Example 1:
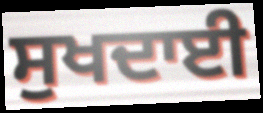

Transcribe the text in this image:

ਸੁਖਦਾਈ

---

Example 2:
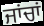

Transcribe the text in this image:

ਜਾਂਚਾਂ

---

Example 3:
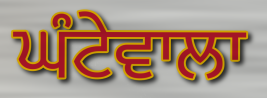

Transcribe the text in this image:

ਘੰਟੇਵਾਲਾ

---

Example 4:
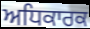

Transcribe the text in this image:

ਅਧਿਕਾਰਕ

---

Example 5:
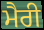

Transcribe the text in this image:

ਮੈਰੀ